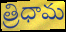
త్రిధామ